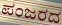
ಪಂಜರದ